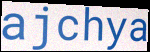
ajchya